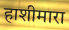
हाशीमारा